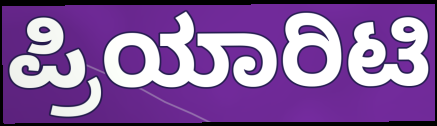
ಪ್ರಿಯಾರಿಟಿ